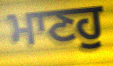
ਮਾਣਹੁ